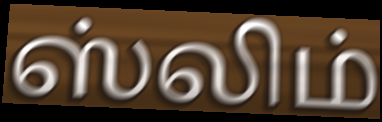
ஸ்லிம்